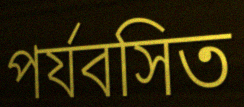
পর্যবসিত